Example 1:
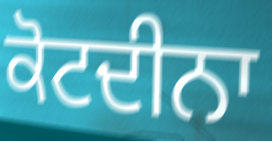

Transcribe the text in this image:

ਕੋਟਦੀਨਾ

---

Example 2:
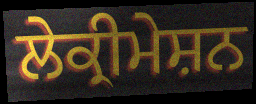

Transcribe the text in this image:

ਲੇਕ੍ਰੀਮੇਸ਼ਨ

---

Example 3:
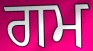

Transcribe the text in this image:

ਗਮ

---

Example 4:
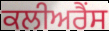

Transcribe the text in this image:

ਕਲੀਅਰੈਂਸ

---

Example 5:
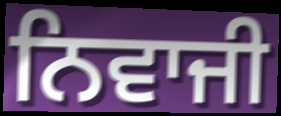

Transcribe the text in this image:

ਨਿਵਾਜੀ